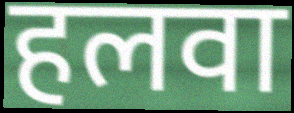
हलवा